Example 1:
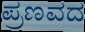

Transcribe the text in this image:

ಪ್ರಣವದ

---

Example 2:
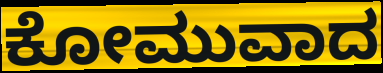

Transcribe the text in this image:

ಕೋಮುವಾದ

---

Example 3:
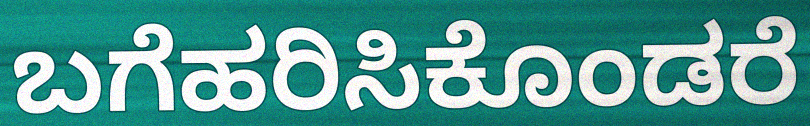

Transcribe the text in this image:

ಬಗೆಹರಿಸಿಕೊಂಡರೆ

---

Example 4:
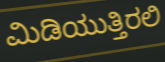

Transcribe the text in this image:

ಮಿಡಿಯುತ್ತಿರಲಿ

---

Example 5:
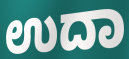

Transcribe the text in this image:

ಉದಾ